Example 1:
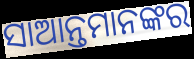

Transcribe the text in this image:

ସାଆନ୍ତମାନଙ୍କର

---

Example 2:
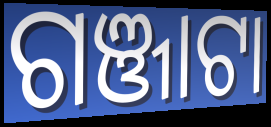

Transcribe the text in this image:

ଗଞ୍ଜାଟା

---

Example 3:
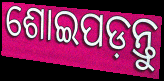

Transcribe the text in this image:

ଶୋଇପଡ଼ନ୍ତୁ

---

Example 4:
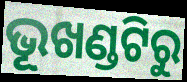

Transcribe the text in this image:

ଭୂଖଣ୍ଡଟିରୁ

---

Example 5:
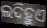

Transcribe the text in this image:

ଲଦିହୁଏ